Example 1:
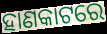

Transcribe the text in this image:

ହାଣକାଟରେ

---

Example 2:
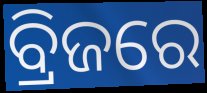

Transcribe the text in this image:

ବ୍ରିଜରେ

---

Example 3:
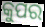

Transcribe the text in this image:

କୁପର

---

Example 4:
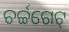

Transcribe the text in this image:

ଚର୍ଚ୍ଚଗେଟ୍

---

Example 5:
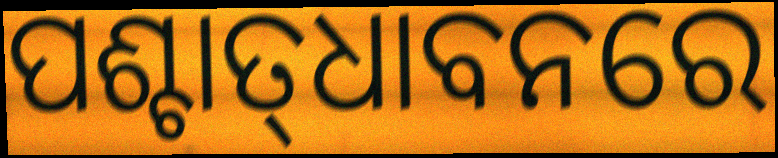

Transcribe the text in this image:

ପଶ୍ଚାତ୍‍ଧାବନରେ